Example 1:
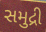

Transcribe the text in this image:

સમુદ્રી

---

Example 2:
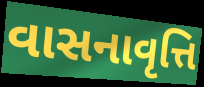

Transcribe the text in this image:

વાસનાવૃત્તિ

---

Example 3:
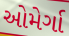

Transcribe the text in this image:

ઓમેર્ગા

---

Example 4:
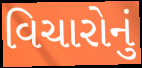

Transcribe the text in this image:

વિચારોનું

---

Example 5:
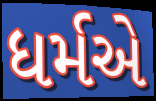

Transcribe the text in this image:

ધર્મએ